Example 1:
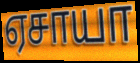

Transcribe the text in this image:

ஏசாயா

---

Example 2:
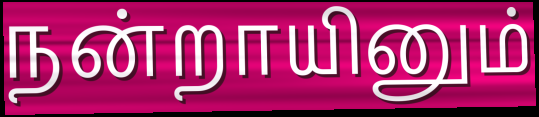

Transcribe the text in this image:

நன்றாயினும்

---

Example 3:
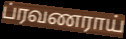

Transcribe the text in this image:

ப்ரவணராய்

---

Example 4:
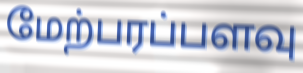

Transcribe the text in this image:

மேற்பரப்பளவு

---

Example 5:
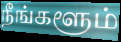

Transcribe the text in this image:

நீங்களூம்